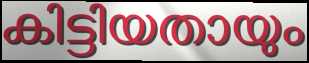
കിട്ടിയതായും